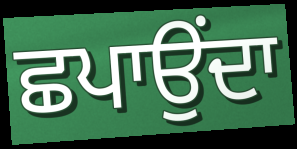
ਛਪਾਉਂਦਾ